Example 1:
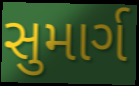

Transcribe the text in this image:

સુમાર્ગ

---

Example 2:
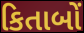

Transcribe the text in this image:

કિતાબોં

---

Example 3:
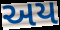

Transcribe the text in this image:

અય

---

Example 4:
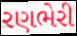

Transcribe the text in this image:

રણભેરી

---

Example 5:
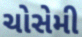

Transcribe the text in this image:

ચોસેમી